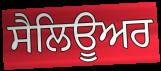
ਸੈਲਿਊਅਰ